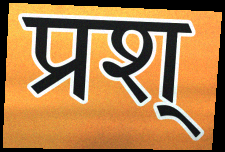
प्रश्